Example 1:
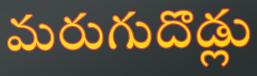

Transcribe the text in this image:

మరుగుదొడ్లు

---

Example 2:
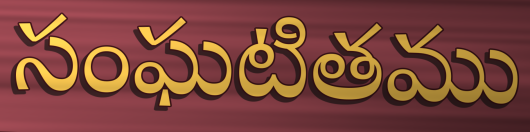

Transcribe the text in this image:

సంఘటితము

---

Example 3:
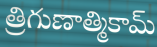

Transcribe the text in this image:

త్రిగుణాత్మికామ్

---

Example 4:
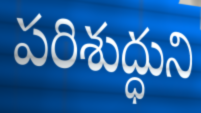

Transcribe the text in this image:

పరిశుద్ధుని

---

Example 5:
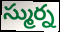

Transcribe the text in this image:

స్ముర్న